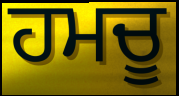
ਹਮਚੂ